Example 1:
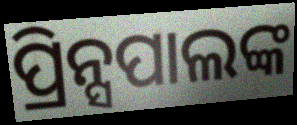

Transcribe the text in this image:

ପ୍ରିନ୍ସପାଲଙ୍କ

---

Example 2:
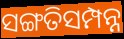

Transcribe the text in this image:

ସଙ୍ଗତିସମ୍ପନ୍ନ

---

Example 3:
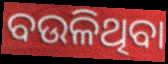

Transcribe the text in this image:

ବଉଳିଥିବା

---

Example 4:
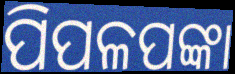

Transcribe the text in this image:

ପିପଳପଙ୍କା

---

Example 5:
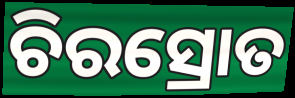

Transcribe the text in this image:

ଚିରସ୍ରୋତ